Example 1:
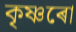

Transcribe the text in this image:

কৃষ্ণৰো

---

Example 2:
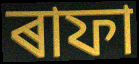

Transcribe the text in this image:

ৰাফা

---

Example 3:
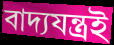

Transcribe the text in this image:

বাদ্যযন্ত্ৰই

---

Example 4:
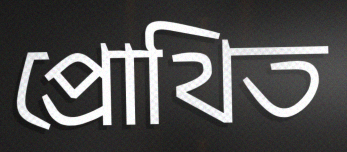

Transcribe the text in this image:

প্ৰোথিত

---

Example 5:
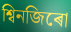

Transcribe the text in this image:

শ্বিনজিৰো